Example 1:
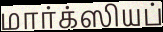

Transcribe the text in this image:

மார்க்ஸியப்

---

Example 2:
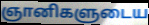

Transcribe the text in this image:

ஞானிகளுடைய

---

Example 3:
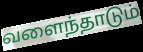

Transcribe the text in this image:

வளைந்தாடும்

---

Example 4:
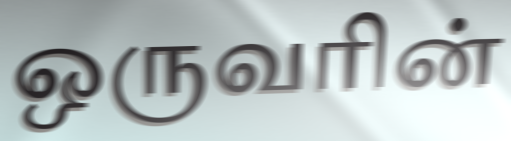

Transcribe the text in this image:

ஒருவரின்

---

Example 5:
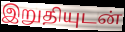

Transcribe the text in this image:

இறுதியுடன்